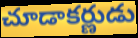
చూడాకర్ణుడు